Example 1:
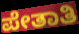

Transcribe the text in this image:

ಪೇತಾತಿ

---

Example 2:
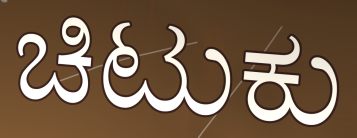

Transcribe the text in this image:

ಚಿಟುಕು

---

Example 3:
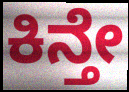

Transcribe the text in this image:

ಕಿನ್ತೇ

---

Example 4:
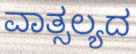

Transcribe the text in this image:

ವಾತ್ಸಲ್ಯದ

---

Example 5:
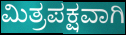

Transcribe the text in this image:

ಮಿತ್ರಪಕ್ಷವಾಗಿ